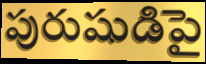
పురుషుడిపై